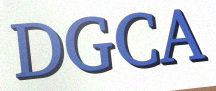
DGCA